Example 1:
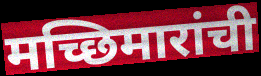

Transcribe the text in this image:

मच्छिमारांची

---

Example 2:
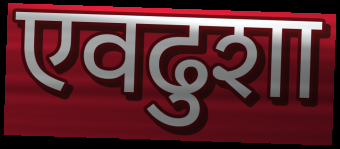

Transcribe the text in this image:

एवढुशा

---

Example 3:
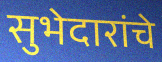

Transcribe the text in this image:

सुभेदारांचे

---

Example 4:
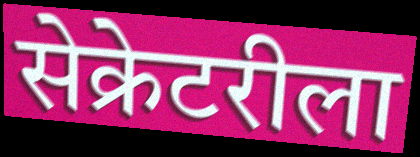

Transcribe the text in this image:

सेक्रेटरीला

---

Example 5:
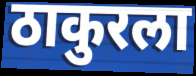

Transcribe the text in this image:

ठाकुरला